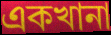
একখানা